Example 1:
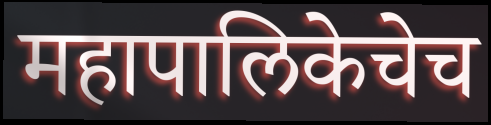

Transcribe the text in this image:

महापालिकेचेच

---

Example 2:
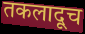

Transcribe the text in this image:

तकलादूच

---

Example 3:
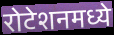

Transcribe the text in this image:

रोटेशनमध्ये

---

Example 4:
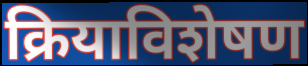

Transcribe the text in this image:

क्रियाविशेषण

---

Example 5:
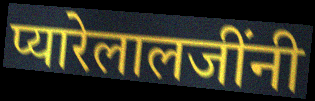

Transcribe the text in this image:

प्यारेलालजींनी